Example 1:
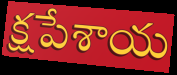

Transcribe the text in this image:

క్షపేశాయ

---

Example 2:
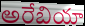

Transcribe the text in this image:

అరేబియా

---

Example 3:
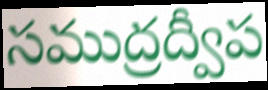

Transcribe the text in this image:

సముద్రద్వీప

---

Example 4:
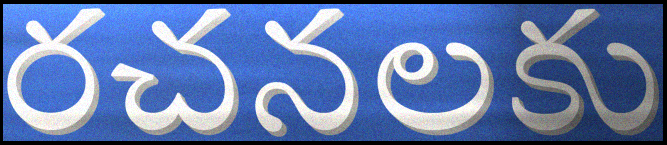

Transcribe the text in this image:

రచనలకు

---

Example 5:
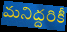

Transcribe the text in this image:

మనిద్దరికీ